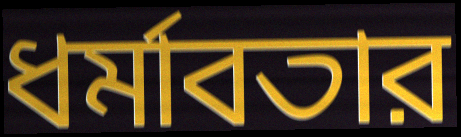
ধর্মাবতার